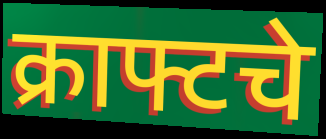
क्राफ्टचे